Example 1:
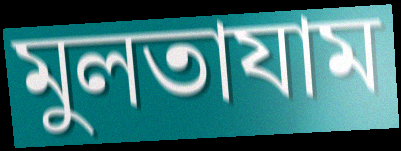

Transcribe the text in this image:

মুলতাযাম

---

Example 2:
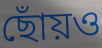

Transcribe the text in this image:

ছোঁয়ও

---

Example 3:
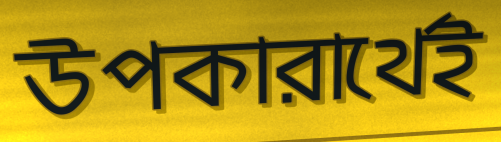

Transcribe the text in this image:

উপকারার্থেই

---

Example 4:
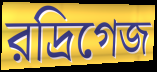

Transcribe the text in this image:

রদ্রিগেজ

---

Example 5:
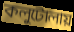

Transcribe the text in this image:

কলুটোলায়